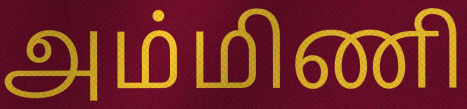
அம்மிணி